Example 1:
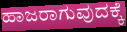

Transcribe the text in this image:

ಹಾಜರಾಗುವುದಕ್ಕೆ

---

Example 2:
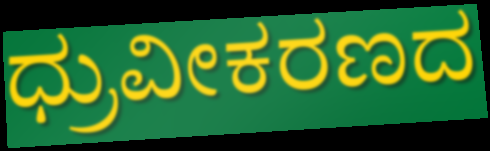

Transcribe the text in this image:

ಧ್ರುವೀಕರಣದ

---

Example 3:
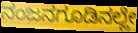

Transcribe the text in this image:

ನಂಜನಗೂಡಿನಲ್ಲೇ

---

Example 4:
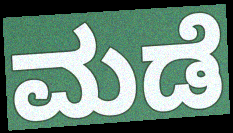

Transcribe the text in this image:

ಮಡೆ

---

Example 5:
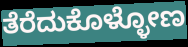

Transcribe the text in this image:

ತೆರೆದುಕೊಳ್ಳೋಣ